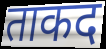
ताकद